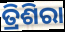
ତ୍ରିଶିରା